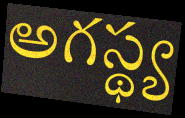
అగస్థ్య